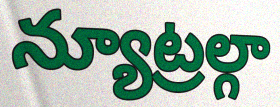
న్యూట్రల్గా